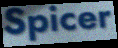
Spicer